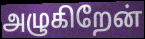
அழுகிறேன்